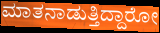
ಮಾತನಾಡುತ್ತಿದ್ದಾರೋ